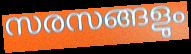
സരസങ്ങളും